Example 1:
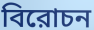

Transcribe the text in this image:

বিরোচন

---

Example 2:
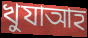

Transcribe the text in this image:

খুযাআহ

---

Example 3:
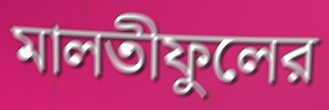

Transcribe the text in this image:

মালতীফুলের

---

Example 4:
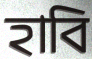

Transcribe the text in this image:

হাবি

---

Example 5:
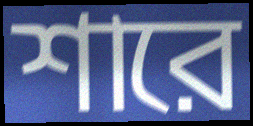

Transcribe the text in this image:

শারে